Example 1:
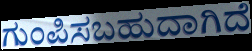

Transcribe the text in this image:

ಗುಂಪಿಸಬಹುದಾಗಿದೆ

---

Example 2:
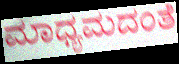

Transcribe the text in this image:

ಮಾಧ್ಯಮದಂತೆ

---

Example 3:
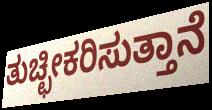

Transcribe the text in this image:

ತುಚ್ಛೀಕರಿಸುತ್ತಾನೆ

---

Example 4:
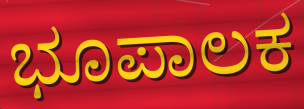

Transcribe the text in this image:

ಭೂಪಾಲಕ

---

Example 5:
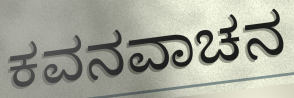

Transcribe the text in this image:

ಕವನವಾಚನ